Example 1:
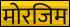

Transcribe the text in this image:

मोरजिम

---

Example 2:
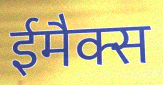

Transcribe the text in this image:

ईमैक्स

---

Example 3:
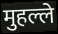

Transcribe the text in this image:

मुहल्ले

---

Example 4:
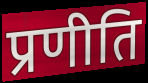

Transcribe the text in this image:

प्रणीति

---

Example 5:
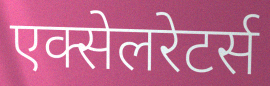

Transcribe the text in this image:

एक्सेलरेटर्स